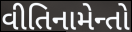
વીતિનામેન્તો